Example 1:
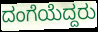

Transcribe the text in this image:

ದಂಗೆಯೆದ್ದರು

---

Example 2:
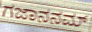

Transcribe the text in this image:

ಗಜಾನನಮ್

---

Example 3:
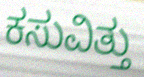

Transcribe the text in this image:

ಕಸುವಿತ್ತು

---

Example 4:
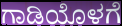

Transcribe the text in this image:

ಗಾಡಿಯೊಳಗೆ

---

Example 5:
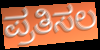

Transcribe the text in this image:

ಪ್ರತಿಸಲ